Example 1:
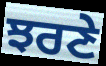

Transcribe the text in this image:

ਝਰਣੇ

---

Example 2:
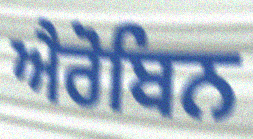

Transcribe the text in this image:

ਐਰੋਬਿਨ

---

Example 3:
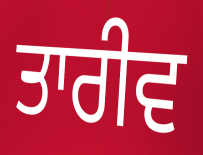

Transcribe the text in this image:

ਤਾਰੀਵ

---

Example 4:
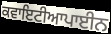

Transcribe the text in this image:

ਕਵਾਇਟੀਆਪਾਈਨ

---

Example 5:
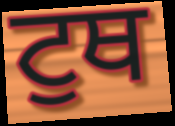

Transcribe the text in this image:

ਟੁਥ